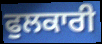
ਫੁਲਕਾਰੀ